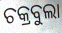
ଚକ୍ରବୁଲା